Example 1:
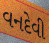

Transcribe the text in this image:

વનદેવી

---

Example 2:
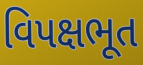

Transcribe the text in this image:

વિપક્ષભૂત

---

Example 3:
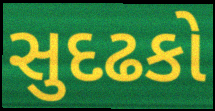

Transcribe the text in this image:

સુદઢકો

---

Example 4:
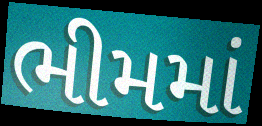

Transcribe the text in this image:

ભીમમાં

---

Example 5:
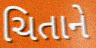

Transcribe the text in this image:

ચિતાને